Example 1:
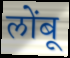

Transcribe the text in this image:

लोंबू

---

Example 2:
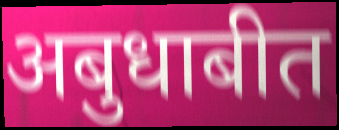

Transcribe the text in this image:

अबुधाबीत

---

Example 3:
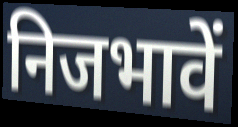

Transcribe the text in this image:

निजभावें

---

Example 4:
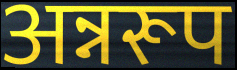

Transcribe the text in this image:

अन्नरूप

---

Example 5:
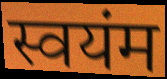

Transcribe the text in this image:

स्वयंम